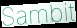
Sambit